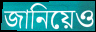
জানিয়েও